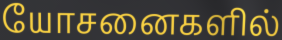
யோசனைகளில்